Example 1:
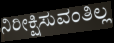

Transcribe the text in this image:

ನಿರೀಕ್ಷಿಸುವಂತಿಲ್ಲ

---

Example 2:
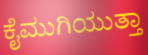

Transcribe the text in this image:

ಕೈಮುಗಿಯುತ್ತಾ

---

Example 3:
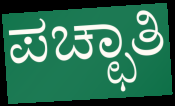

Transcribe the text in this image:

ಪಚ್ಛಾತಿ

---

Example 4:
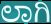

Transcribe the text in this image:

ಲಾಗಿ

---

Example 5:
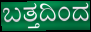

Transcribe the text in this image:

ಬತ್ತದಿಂದ